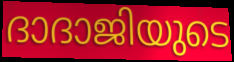
ദാദാജിയുടെ